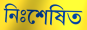
নিঃশেষিত